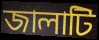
জালাটি